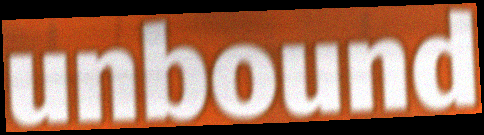
unbound